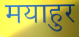
मयाहुर